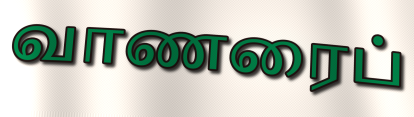
வாணரைப்